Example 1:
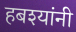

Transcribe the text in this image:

हबश्यांनी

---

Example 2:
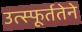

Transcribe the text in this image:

उत्स्फूर्ततेने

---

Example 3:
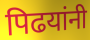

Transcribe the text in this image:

पिढयांनी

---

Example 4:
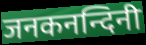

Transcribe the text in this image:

जनकनन्दिनी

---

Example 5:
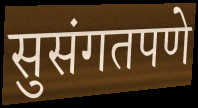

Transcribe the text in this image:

सुसंगतपणे